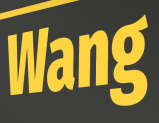
Wang